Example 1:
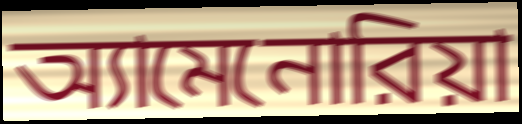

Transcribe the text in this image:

অ্যামেনোরিয়া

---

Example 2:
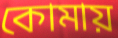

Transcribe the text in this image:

কোমায়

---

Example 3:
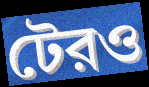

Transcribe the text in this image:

টেরও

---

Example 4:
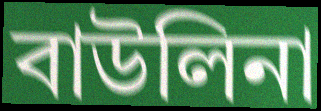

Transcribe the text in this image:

বাউলিনা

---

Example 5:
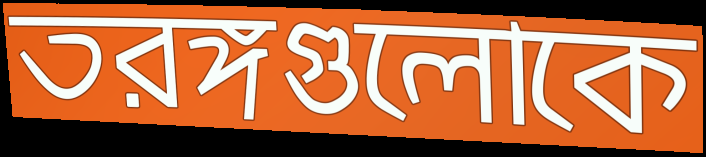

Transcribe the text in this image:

তরঙ্গগুলোকে